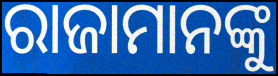
ରାଜାମାନଙ୍କୁ